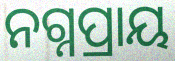
ନଗ୍ନପ୍ରାୟ